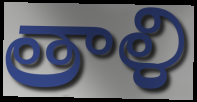
తాళి